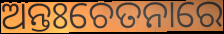
ଅନ୍ତଃଚେତନାରେ